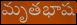
మృతభాష